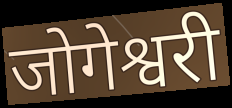
जोगेश्वरी